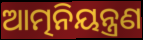
ଆତ୍ମନିୟନ୍ତ୍ରଣ